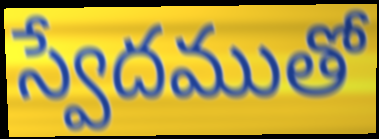
స్వేదముతో